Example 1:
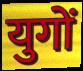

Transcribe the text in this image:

युगों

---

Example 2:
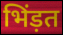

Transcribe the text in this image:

भिंड़त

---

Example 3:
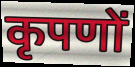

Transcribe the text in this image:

कृपणों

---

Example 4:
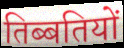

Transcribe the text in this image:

तिब्बतियों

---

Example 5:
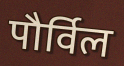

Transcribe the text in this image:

पौर्विल